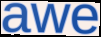
awe